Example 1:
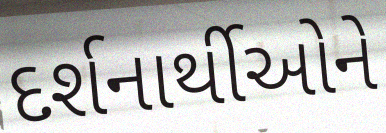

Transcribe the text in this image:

દર્શનાર્થીઓને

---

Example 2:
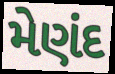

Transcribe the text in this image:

મેણંદ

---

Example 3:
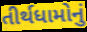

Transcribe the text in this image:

તીર્થધામોનું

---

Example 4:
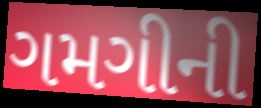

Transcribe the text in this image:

ગમગીની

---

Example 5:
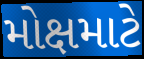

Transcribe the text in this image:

મોક્ષમાટે